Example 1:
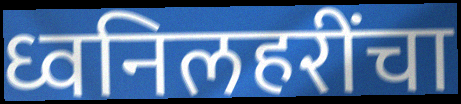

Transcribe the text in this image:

ध्वनिलहरींचा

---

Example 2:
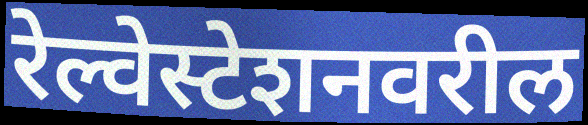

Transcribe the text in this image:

रेल्वेस्टेशनवरील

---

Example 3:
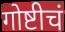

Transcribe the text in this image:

गोष्टीचं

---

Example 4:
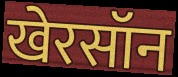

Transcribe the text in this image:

खेरसॉन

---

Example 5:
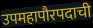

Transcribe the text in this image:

उपमहापौरपदाची